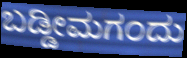
ಬಡ್ಡೀಮಗಂದು